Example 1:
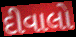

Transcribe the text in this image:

દીવાલો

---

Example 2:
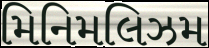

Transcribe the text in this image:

મિનિમલિઝમ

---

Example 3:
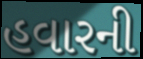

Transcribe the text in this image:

હવારની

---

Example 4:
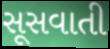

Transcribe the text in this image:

સૂસવાતી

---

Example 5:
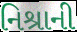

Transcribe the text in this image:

નિશ્રાની